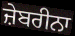
ਜ਼ੇਬਰੀਨਾ